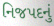
નિજપદનું